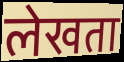
लेखता